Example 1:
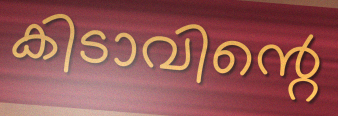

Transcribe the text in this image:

കിടാവിന്റെ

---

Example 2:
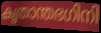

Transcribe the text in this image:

കൃതാന്തഭഗിനി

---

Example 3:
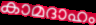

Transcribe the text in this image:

കാമദാഹം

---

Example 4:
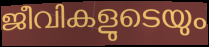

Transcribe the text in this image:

ജീവികളുടെയും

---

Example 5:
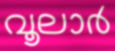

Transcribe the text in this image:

വൂലാർ